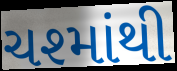
ચશ્માંથી